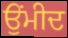
ਉਂਮੀਦ